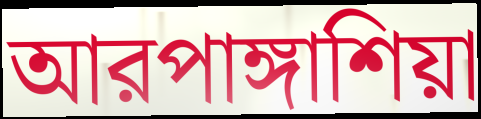
আরপাঙ্গাশিয়া